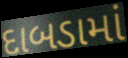
દાબડામાં